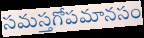
సమస్తగోపమానసం